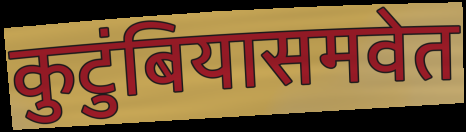
कुटुंबियासमवेत